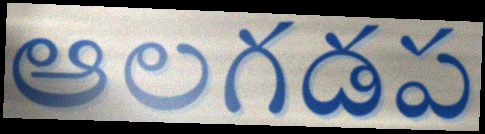
ఆలగడప